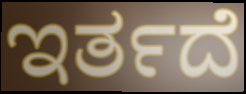
ಇರ್ತದೆ